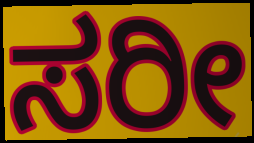
ಸರೀ